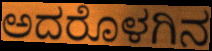
ಅದರೊಳಗಿನ